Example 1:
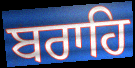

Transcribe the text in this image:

ਬਰਾਹਿ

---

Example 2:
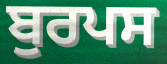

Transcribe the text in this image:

ਬੁਰਪਸ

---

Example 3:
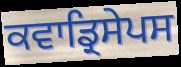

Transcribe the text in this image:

ਕਵਾਡ੍ਰਿਸੇਪਸ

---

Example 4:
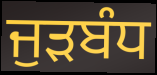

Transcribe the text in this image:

ਜੁੜਬੰਧ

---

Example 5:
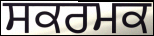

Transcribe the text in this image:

ਸਕਰਮਕ